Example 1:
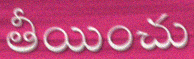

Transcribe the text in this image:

తీయించు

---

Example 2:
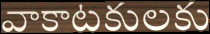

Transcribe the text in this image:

వాకాటకులకు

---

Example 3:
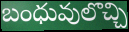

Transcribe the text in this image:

బంధువులొచ్చి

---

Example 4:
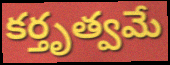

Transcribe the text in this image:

కర్తృత్వమే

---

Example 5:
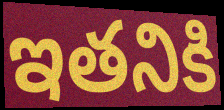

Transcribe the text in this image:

ఇతనికి